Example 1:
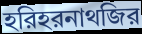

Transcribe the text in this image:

হরিহরনাথজির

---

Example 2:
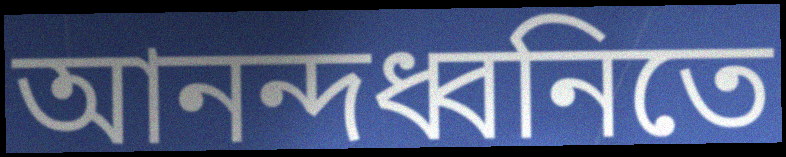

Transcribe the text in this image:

আনন্দধ্বনিতে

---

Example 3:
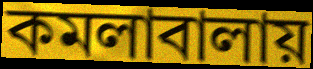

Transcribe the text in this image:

কমলাবালায়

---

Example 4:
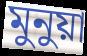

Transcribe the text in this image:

মুনুয়া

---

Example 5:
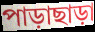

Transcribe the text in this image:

পাড়াছাড়া